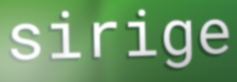
sirige